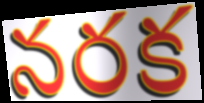
నరక